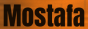
Mostafa